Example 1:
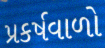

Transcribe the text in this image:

પ્રકર્ષવાળો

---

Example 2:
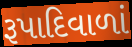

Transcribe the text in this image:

રૂપાદિવાળાં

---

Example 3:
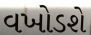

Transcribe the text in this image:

વખોડશે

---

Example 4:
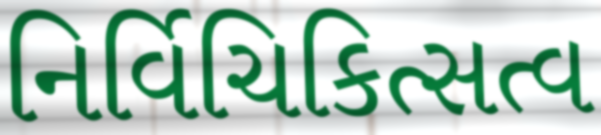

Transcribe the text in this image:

નિર્વિચિકિત્સત્વ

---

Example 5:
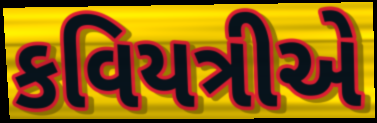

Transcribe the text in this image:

કવિયત્રીએ